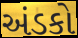
અંડકો